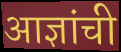
आज्ञांची